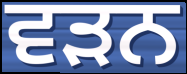
ਵੜਨ